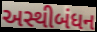
અસ્થીબંધન